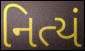
નિત્યં